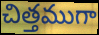
చిత్తముగా